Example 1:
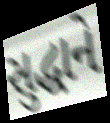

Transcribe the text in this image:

સુદ્ધાને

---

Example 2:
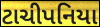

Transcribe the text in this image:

ટાચીપનિયા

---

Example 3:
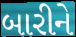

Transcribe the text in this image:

બારીને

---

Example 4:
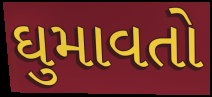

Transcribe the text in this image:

ઘુમાવતો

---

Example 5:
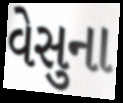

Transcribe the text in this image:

વેસુના